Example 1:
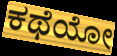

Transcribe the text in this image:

ಕಥೆಯೋ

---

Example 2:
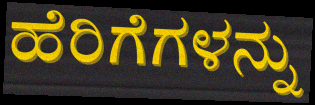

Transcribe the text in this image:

ಹೆರಿಗೆಗಳನ್ನು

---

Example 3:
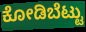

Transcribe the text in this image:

ಕೋಡಿಬೆಟ್ಟು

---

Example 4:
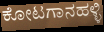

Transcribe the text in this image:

ಕೋಟಗಾನಹಳ್ಳಿ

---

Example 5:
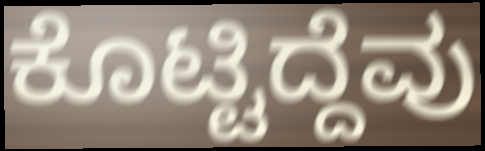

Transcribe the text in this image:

ಕೊಟ್ಟಿದ್ದೆವು